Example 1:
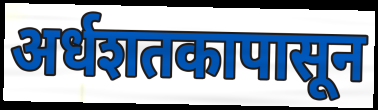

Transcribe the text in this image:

अर्धशतकापासून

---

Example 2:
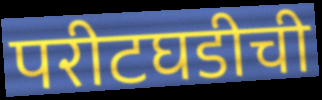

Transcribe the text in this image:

परीटघडीची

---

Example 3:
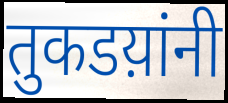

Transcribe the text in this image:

तुकडय़ांनी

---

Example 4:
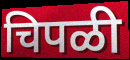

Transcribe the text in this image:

चिपळी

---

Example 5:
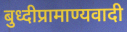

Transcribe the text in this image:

बुध्दीप्रामाण्यवादी